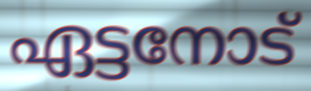
ഏട്ടനോട്